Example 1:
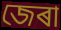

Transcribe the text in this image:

জেৰা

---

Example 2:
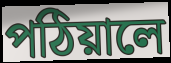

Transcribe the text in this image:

পঠিয়ালে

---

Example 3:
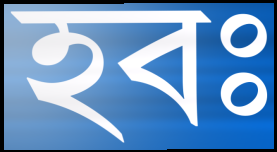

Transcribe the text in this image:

হবঃ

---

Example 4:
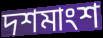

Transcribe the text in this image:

দশমাংশ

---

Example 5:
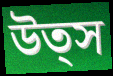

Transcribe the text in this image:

উত্স